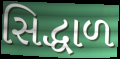
સિદ્ધાળ